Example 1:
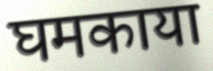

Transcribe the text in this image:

घमकाया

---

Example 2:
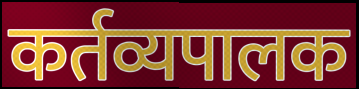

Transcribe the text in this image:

कर्तव्यपालक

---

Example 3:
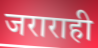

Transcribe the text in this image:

जराराही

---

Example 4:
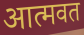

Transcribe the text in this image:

आत्मवत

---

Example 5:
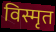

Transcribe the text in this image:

विस्मृत